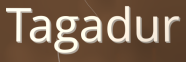
Tagadur